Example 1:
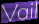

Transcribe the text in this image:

Vail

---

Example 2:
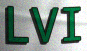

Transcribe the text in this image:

LVI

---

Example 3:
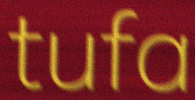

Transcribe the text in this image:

tufa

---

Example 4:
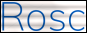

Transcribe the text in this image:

Rosc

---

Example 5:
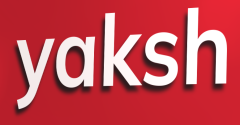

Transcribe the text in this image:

yaksh